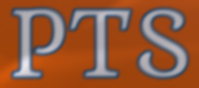
PTS